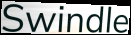
Swindle